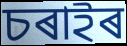
চৰাইৰ